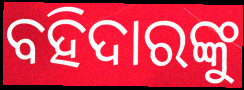
ବହିଦାରଙ୍କୁ